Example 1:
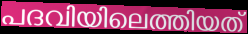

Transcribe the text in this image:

പദവിയിലെത്തിയത്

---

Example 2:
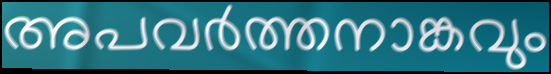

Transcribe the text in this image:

അപവർത്തനാങ്കവും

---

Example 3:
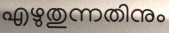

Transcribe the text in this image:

എഴുതുന്നതിനും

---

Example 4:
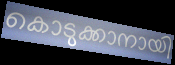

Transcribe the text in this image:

കൊടുക്കാനായി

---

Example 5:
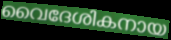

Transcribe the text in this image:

വൈദേശികനായ